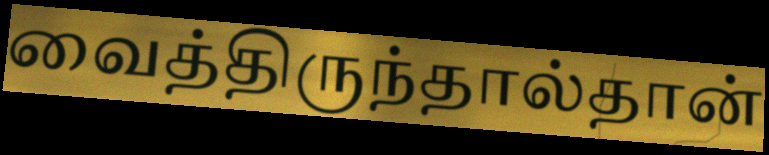
வைத்திருந்தால்தான்